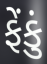
ફેંકું